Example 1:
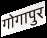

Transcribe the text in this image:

गोगापुर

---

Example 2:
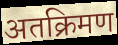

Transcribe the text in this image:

अतक्रिमण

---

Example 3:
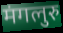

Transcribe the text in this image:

मंगलुरु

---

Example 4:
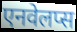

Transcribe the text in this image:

एनवेलप्स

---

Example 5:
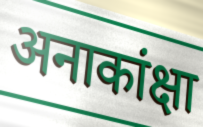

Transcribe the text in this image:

अनाकांक्षा